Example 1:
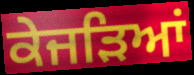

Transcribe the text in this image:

ਕੇਜੜਿਆਂ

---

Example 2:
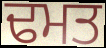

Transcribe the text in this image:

ਢਮਤ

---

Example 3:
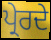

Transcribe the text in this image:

ਪ੍ਰੇਰਦੇ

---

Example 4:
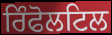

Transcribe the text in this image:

ਰਿੰਫੋਲਟਿਲ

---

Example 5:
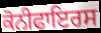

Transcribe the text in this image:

ਕੋਨੀਫਾਇਰਸ